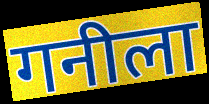
गनीला